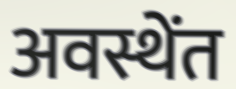
अवस्थेंत